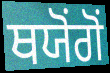
ਥਯੋਂਗੋਂ